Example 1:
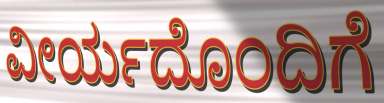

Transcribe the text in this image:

ವೀರ್ಯದೊಂದಿಗೆ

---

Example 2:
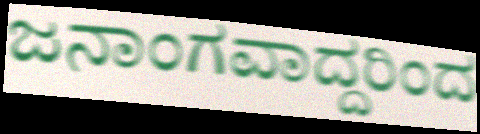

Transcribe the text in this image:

ಜನಾಂಗವಾದ್ದರಿಂದ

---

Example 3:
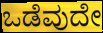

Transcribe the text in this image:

ಒಡೆವುದೇ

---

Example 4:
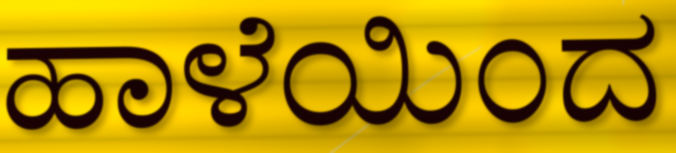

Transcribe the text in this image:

ಹಾಳೆಯಿಂದ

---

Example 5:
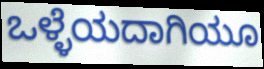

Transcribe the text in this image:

ಒಳ್ಳೆಯದಾಗಿಯೂ